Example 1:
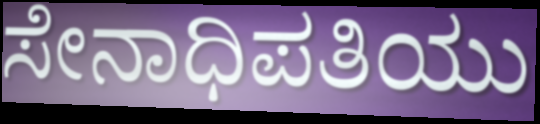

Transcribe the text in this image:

ಸೇನಾಧಿಪತಿಯು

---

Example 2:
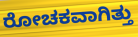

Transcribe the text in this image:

ರೋಚಕವಾಗಿತ್ತು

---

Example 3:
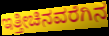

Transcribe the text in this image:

ಇತ್ತೀಚಿನವರೆಗಿನ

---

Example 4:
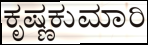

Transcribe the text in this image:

ಕೃಷ್ಣಕುಮಾರಿ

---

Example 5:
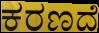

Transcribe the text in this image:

ಕರಣದೆ